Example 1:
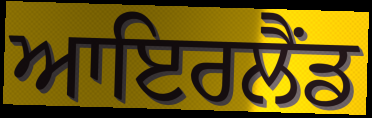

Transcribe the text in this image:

ਆਇਰਲੈੰਡ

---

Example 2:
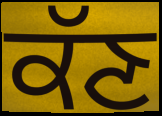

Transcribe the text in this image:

ਕੱਣ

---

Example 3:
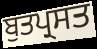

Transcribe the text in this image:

ਬੁਤਪ੍ਰਸਤ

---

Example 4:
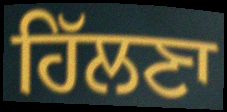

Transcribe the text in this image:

ਹਿੱਲਣਾ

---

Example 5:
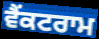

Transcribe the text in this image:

ਵੈਂਕਟਰਾਮ